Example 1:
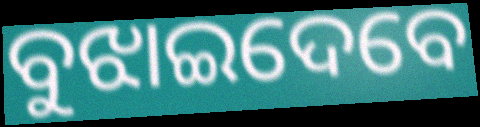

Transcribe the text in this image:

ବୁଝାଇଦେବେ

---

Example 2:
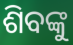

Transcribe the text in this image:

ଶିବଙ୍କୁ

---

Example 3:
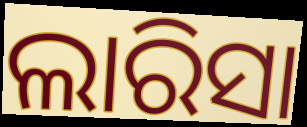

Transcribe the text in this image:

ଲାରିସା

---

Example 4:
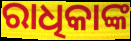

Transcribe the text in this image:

ରାଧିକାଙ୍କ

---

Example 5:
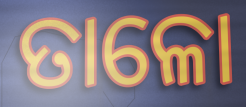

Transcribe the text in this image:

ତାଳୋ